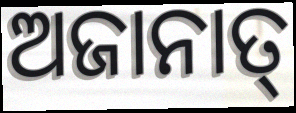
ଅଜାନାତ୍